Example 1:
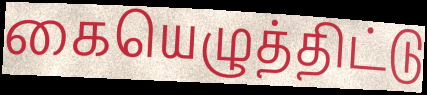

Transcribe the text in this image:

கையெழுத்திட்டு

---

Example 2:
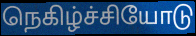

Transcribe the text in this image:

நெகிழ்ச்சியோடு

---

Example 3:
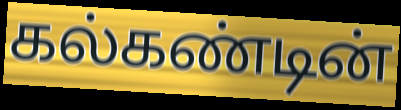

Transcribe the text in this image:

கல்கண்டின்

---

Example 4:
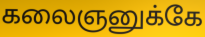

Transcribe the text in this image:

கலைஞனுக்கே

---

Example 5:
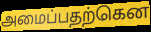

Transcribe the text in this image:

அமைப்பதற்கென